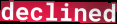
declined